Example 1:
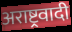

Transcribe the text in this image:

अराष्ट्रवादी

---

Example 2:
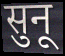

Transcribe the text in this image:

सुनू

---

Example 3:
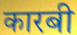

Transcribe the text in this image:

कारबी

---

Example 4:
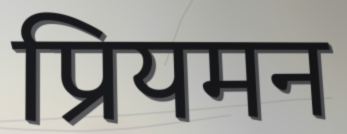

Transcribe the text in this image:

प्रियमन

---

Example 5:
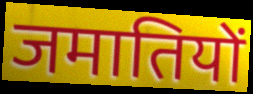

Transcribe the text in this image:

जमातियों